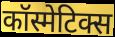
कॉस्मेटिक्स